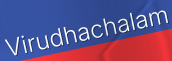
Virudhachalam